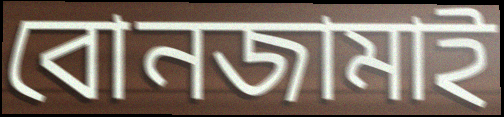
বোনজামাই